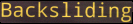
Backsliding